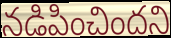
నడిపించిందని